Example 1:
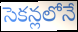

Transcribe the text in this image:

సెకన్లలోనే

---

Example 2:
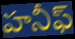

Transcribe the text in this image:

హనీఫ్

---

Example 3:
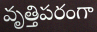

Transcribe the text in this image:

వృత్తిపరంగా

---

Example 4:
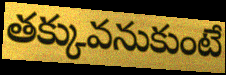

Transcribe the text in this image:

తక్కువనుకుంటే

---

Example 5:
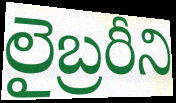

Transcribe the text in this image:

లైబ్రరీని